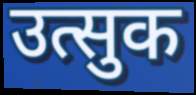
उत्सुक